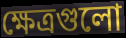
ক্ষেত্রগুলো